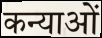
कन्‍याओं